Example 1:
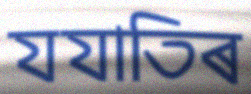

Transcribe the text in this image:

যযাতিৰ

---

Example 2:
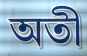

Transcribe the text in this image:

অতী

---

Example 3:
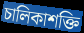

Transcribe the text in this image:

চালিকাশক্তি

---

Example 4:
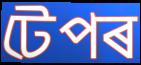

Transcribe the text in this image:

টেপৰ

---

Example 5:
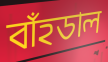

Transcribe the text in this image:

বাঁহডাল